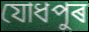
যোধপুৰ